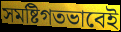
সমষ্টিগতভাবেই